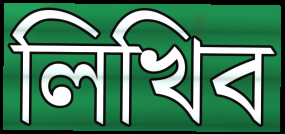
লিখিব